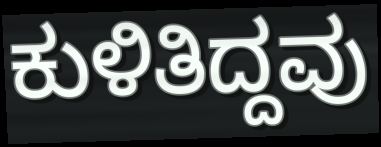
ಕುಳಿತಿದ್ದವು